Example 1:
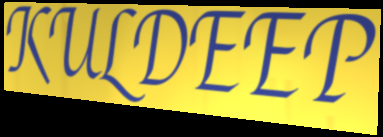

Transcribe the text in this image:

KULDEEP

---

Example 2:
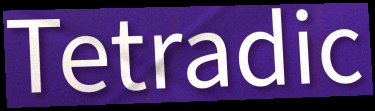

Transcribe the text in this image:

Tetradic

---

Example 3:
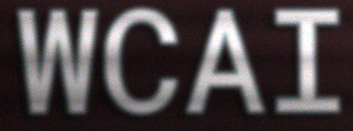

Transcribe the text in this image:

WCAI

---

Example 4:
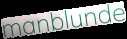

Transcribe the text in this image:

manblunde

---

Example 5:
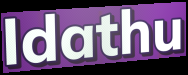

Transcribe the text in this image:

Idathu